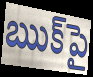
ఋక్‌పై